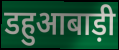
डहुआबाड़ी